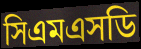
সিএমএসডি